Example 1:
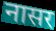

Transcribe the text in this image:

नासर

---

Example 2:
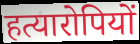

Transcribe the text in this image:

हत्यारोपियों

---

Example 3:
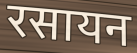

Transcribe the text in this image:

रसायन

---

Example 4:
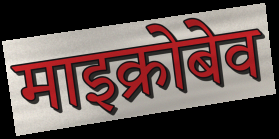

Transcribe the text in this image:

माइक्रोबेव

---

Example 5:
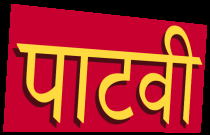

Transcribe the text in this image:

पाटवी